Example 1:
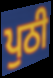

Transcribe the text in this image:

ਪੁਠੀ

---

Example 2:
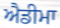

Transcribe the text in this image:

ਐਡੀਮਾ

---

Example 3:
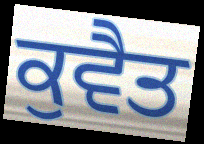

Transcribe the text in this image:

ਕੁਵੈਤ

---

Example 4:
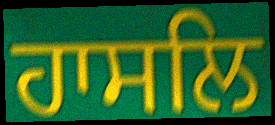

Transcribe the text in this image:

ਹਾਸਲਿ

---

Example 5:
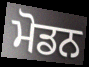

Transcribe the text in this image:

ਮੋਡਨ